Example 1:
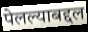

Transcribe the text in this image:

पेलल्याबद्दल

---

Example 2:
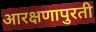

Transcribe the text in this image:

आरक्षणापुरती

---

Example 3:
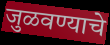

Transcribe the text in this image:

जुळवण्याचे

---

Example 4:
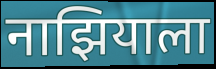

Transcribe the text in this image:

नाझियाला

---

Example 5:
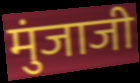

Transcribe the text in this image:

मुंजाजी